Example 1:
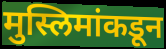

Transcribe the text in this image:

मुस्लिमांकडून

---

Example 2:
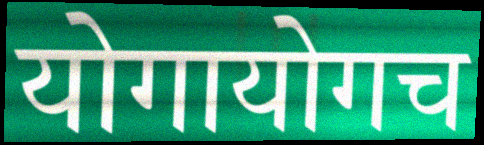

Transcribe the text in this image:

योगायोगच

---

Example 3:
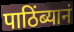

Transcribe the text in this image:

पाठिंब्यानं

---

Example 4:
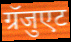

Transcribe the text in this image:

ग्रॅजुएट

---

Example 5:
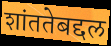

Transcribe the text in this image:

शांततेबद्दल